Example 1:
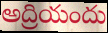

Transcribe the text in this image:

అద్రియందు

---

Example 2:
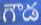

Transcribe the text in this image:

గౌడ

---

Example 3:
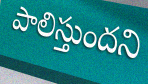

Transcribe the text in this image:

పాలిస్తుందని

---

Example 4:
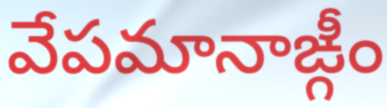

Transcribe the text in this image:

వేపమానాఙ్గీం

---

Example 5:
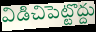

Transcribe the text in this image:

విడిచిపెట్టొద్దు